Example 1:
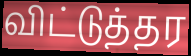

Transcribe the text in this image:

விட்டுத்தர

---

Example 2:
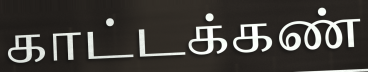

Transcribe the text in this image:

காட்டக்கண்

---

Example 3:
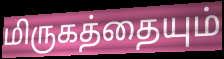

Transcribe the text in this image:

மிருகத்தையும்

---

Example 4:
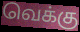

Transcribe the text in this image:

வெக்கு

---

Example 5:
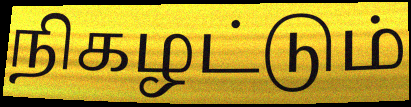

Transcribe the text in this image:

நிகழட்டும்